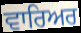
ਵਾਰਿਅਰ